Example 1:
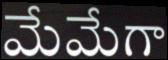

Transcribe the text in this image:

మేమేగా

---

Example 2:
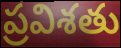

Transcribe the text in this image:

ప్రవిశతు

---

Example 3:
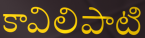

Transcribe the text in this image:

కావిలిపాటి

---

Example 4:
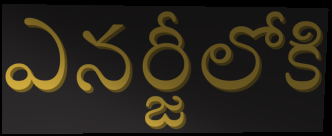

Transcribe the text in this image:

ఎనర్జీలోకి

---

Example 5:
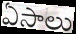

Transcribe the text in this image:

ఏసాలు